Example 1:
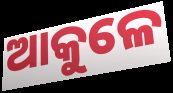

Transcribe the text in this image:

ଆକୁଳେ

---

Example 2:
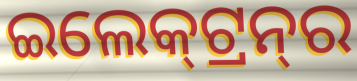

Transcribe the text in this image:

ଇଲେକ୍‍ଟ୍ରନ୍‍ର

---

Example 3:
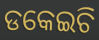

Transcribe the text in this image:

ଡକେଇଚି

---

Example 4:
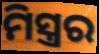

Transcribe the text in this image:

ମିସ୍ତ୍ରର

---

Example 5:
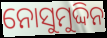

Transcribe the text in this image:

ନୋସୁମୁଦ୍ଦିନ